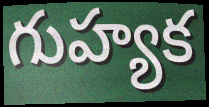
గుహ్యక